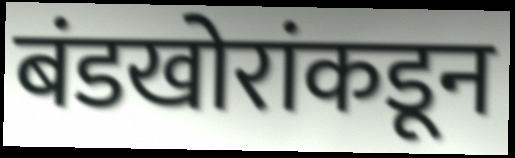
बंडखोरांकडून